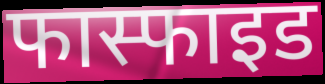
फास्फाइड